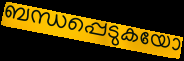
ബന്ധപ്പെടുകയോ